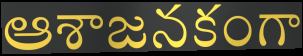
ఆశాజనకంగా